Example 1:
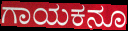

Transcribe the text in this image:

ಗಾಯಕನೂ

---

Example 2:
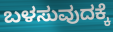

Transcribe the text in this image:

ಬಳಸುವುದಕ್ಕೆ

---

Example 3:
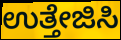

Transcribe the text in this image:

ಉತ್ತೇಜಿಸಿ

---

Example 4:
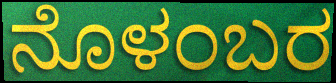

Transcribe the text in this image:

ನೊಳಂಬರ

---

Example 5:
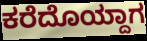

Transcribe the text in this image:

ಕರೆದೊಯ್ದಾಗ